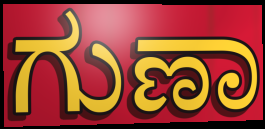
ಗುಣಾ